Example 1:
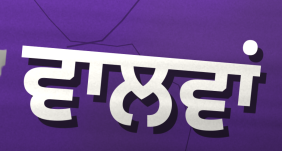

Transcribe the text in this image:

ਵਾਲਵਾਂ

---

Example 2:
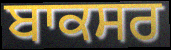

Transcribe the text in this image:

ਬਾਕਸਰ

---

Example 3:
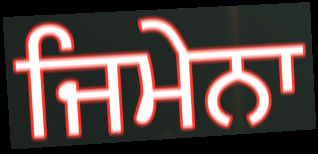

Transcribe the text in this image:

ਜਿਮੇਨਾ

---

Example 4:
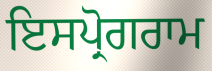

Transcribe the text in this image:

ਇਸਪ੍ਰੋਗਰਾਮ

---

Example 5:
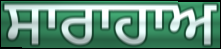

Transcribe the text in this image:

ਸਾਰਾਹਾਅ